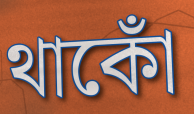
থাকোঁ